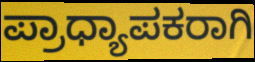
ಪ್ರಾಧ್ಯಾಪಕರಾಗಿ